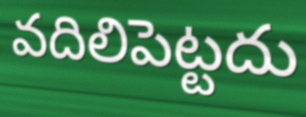
వదిలిపెట్టదు